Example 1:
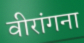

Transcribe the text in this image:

वीरांगना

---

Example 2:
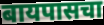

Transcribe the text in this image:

बायपासचा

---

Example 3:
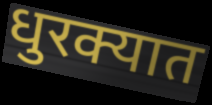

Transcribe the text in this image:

धुरक्यात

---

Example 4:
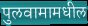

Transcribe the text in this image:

पुलवामामधील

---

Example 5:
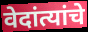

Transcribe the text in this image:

वेदांत्यांचे